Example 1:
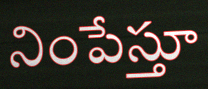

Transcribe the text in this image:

నింపేస్తూ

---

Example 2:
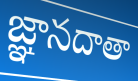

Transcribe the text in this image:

జ్ఞానదాతా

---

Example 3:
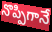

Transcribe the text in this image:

నొప్పిగానే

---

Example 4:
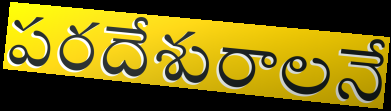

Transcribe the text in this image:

పరదేశురాలనే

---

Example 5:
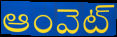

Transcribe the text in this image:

ఆంవెట్